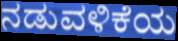
ನಡುವಳಿಕೆಯ